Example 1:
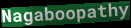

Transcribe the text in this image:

Nagaboopathy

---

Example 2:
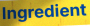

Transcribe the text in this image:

Ingredient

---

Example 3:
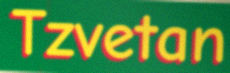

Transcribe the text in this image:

Tzvetan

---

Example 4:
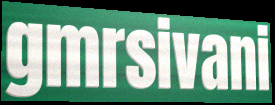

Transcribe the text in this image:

gmrsivani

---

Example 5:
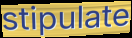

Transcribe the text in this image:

stipulate